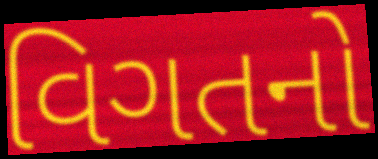
વિગતનો